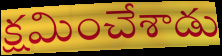
క్షమించేశాడు